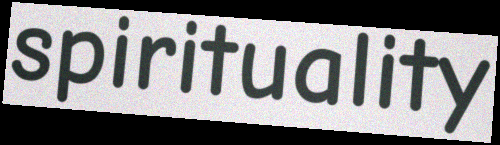
spirituality